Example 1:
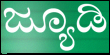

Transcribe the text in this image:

ಜ್ಯೂಡಿ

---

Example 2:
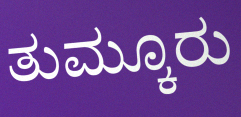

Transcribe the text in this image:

ತುಮ್ಕೂರು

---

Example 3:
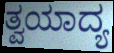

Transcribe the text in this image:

ತ್ವಯಾದ್ಯ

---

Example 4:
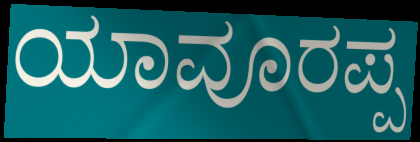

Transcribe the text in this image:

ಯಾವೂರಪ್ಪ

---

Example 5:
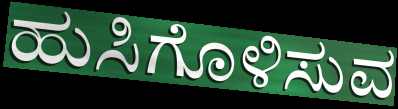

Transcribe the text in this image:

ಹುಸಿಗೊಳಿಸುವ